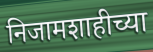
निजामशाहीच्या